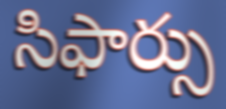
సిఫార్సు